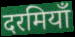
दरमियाँ